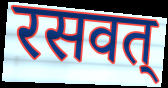
रसवत्